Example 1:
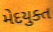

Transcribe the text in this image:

મેદયુક્ત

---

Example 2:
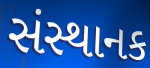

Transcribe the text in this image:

સંસ્થાનક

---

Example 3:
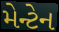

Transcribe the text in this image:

મેન્ટેન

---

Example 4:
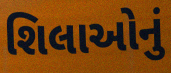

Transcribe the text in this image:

શિલાઓનું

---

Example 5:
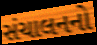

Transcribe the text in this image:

સંચાલનનો